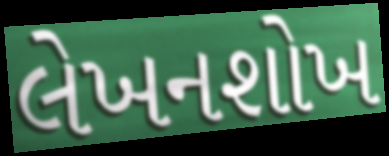
લેખનશોખ